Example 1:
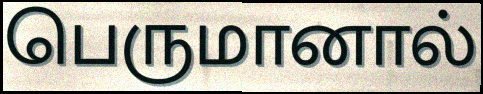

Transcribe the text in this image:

பெருமானால்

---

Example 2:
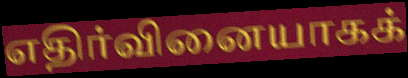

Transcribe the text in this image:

எதிர்வினையாகக்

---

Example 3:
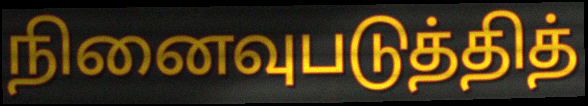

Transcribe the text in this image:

நினைவுபடுத்தித்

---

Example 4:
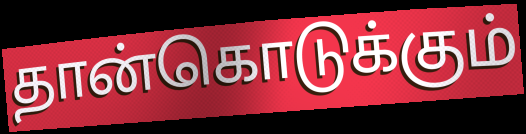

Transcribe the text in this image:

தான்கொடுக்கும்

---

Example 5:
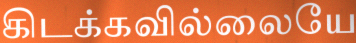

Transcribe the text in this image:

கிடக்கவில்லையே